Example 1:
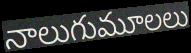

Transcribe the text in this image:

నాలుగుమూలలు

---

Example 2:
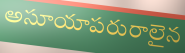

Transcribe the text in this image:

అసూయాపరురాలైన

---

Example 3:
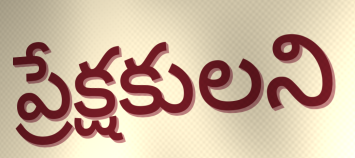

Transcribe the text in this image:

ప్రేక్షకులని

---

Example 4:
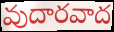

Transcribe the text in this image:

వుదారవాద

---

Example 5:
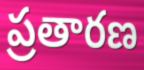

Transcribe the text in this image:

ప్రతారణ